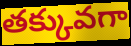
తక్కువగా